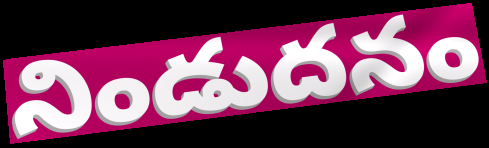
నిండుదనం